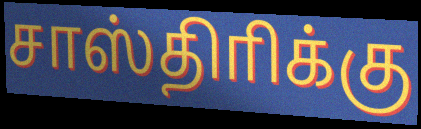
சாஸ்திரிக்கு